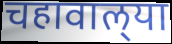
चहावाल्या